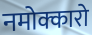
नमोक्कारो